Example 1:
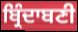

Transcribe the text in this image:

ਬ੍ਰਿੰਦਾਬਣੀ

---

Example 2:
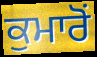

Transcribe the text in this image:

ਕੁਮਾਰੋਂ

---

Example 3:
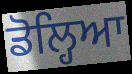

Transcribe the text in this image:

ਡੋਲ੍ਹਿਆ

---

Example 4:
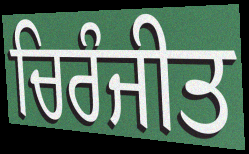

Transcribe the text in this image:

ਚਿਰੰਜੀਤ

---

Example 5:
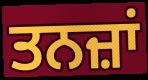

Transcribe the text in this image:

ਤਨਜ਼ਾਂ